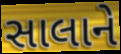
સાલાને